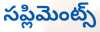
సప్లిమెంట్స్